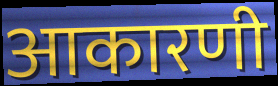
आकारणी